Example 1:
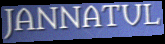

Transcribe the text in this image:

JANNATUL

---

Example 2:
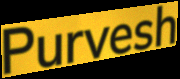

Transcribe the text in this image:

Purvesh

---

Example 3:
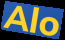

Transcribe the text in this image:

Alo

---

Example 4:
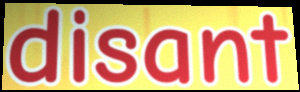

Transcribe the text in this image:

disant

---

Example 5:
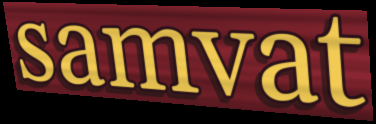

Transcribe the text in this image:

samvat